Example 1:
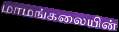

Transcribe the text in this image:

மாமங்கலையின்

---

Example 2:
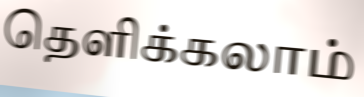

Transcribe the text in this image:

தெளிக்கலாம்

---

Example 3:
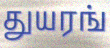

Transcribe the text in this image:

துயரங்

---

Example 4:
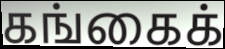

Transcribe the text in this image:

கங்கைக்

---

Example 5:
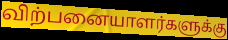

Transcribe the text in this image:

விற்பனையாளர்களுக்கு